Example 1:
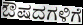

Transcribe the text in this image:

ಔಷದಗಳಿಗೆ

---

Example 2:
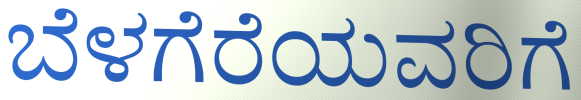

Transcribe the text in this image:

ಬೆಳಗೆರೆಯವರಿಗೆ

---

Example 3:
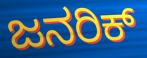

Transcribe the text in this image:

ಜನರಿಕ್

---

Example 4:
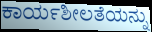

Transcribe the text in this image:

ಕಾರ್ಯಶೀಲತೆಯನ್ನು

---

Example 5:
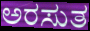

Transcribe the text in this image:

ಅರಸುತ